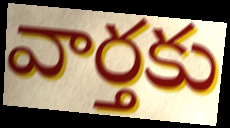
వార్తకు